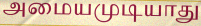
அமையமுடியாது